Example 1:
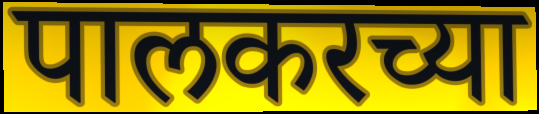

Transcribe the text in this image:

पालकरच्या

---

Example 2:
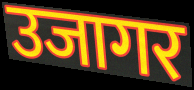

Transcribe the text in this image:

उजागर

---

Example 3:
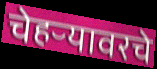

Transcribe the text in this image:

चेहऱ्यावरचे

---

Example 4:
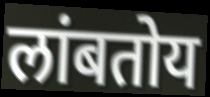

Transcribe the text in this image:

लांबतोय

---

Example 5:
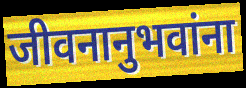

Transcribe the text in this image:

जीवनानुभवांना